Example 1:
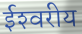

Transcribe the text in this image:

ईश्वरीय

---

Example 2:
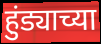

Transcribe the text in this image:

हुंड्याच्या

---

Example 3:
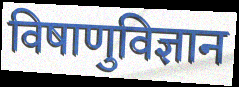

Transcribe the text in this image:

विषाणुविज्ञान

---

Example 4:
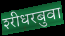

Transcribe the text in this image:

श्रीधरबुवा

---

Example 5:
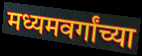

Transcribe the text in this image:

मध्यमवर्गांच्या